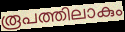
രൂപത്തിലാകും